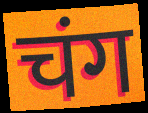
चंग